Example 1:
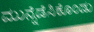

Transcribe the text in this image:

ಮುನ್ನೆಡೆಸಿಕೊಂಡು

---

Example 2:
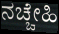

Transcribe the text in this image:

ನಚ್ಚೇಹಿ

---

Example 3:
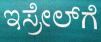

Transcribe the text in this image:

ಇಸ್ರೇಲ್‍ಗೆ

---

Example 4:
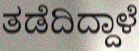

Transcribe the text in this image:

ತಡೆದಿದ್ದಾಳೆ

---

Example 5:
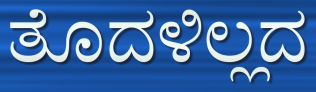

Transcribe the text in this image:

ತೊದಳಿಲ್ಲದ